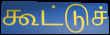
கூட்டுச்